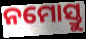
ନମୋସ୍ତୁ